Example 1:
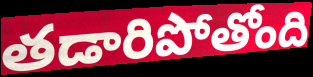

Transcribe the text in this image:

తడారిపోతోంది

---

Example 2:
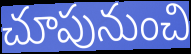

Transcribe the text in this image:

చూపునుంచి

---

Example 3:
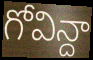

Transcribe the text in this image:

గోవిన్దా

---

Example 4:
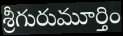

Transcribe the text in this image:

శ్రీగురుమూర్తిం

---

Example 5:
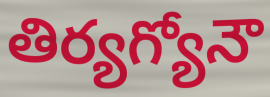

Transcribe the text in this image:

తిర్యగ్యోనౌ